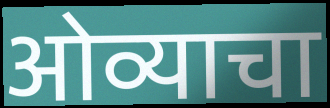
ओव्याचा